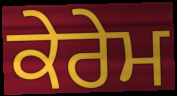
ਕੇਰੇਮ